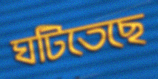
ঘটিতেছে